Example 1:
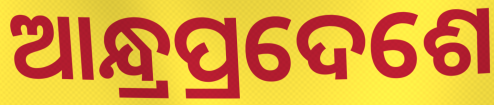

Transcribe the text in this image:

ଆନ୍ଧ୍ରପ୍ରଦେଶେ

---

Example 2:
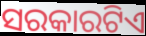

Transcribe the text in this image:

ସରକାରଟିଏ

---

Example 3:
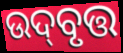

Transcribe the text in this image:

ଉଦ୍‌ବୃତ୍ତ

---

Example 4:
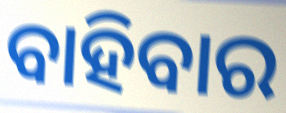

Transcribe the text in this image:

ବାହିବାର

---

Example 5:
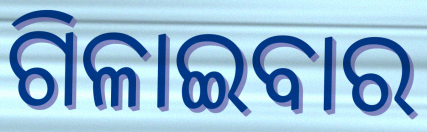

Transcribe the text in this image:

ଗିଳାଇବାର